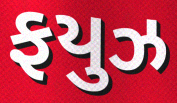
ફયુઝ